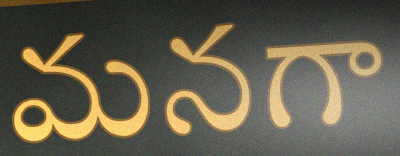
మనగా